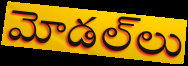
మోడల్‌లు